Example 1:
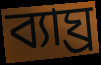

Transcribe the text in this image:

ব্যাঘ্র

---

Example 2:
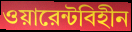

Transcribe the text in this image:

ওয়ারেন্টবিহীন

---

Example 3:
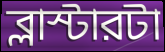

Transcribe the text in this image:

ব্লাস্টারটা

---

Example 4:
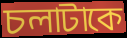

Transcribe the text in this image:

চলাটাকে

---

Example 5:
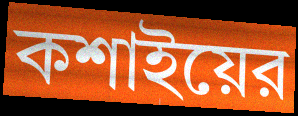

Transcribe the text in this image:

কশাইয়ের